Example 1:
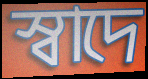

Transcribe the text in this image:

স্বাদে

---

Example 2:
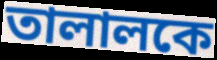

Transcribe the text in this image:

তালালকে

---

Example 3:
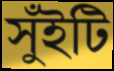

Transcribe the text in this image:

সুঁইটি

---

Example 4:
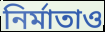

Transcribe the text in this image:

নির্মাতাও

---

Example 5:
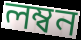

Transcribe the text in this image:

লম্বন